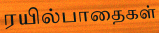
ரயில்பாதைகள்